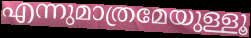
എന്നുമാത്രമേയുള്ളൂ